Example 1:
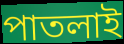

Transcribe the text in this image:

পাতলাই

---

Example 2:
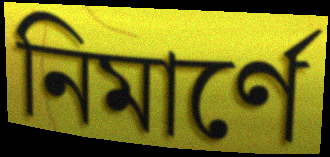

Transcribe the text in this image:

নিমার্ণে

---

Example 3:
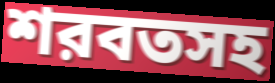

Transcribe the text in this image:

শরবতসহ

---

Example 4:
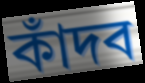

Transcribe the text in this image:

কাঁদব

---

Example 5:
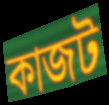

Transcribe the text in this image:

কাজট